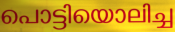
പൊട്ടിയൊലിച്ച